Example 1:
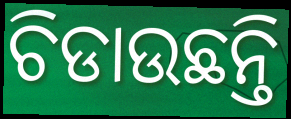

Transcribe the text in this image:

ଚିଡାଉଛନ୍ତି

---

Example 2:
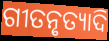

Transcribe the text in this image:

ଗୀତନୃତ୍ୟାଦି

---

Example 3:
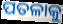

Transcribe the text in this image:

ପତଳାକୁ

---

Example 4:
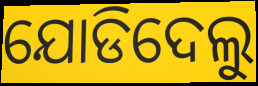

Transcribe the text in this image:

ଯୋଡିଦେଲୁ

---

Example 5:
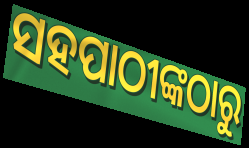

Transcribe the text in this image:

ସହପାଠୀଙ୍କଠାରୁ